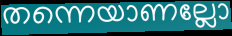
തന്നെയാണല്ലോ